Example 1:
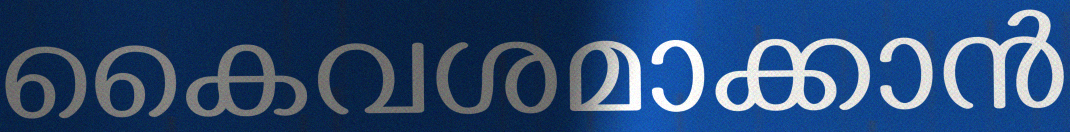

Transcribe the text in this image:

കൈവശമാക്കാൻ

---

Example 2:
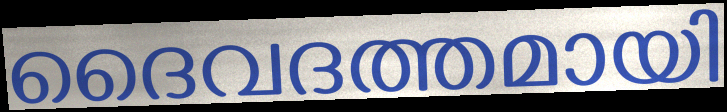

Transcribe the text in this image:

ദൈവദത്തമായി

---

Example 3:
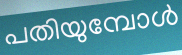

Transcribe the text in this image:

പതിയുമ്പോൾ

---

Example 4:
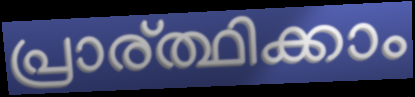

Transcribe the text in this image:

പ്രാര്ത്ഥിക്കാം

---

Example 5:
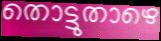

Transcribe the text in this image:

തൊട്ടുതാഴെ